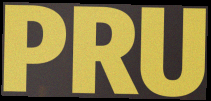
PRU